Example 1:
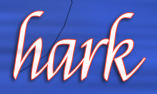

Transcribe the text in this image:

hark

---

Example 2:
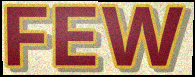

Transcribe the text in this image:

FEW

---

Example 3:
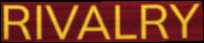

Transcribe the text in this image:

RIVALRY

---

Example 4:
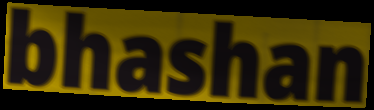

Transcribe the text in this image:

bhashan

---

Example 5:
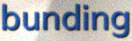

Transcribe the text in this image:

bunding